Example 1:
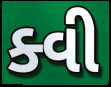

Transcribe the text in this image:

ક્વી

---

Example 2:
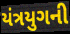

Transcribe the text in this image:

યંત્રયુગની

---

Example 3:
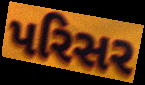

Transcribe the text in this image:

પરિસર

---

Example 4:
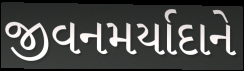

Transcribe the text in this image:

જીવનમર્યાદાને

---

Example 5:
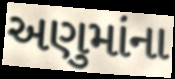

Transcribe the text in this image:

અણુમાંના